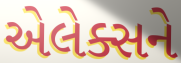
એલેક્સને